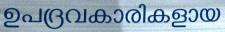
ഉപദ്രവകാരികളായ